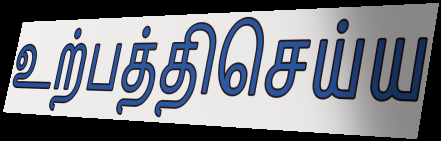
உற்பத்திசெய்ய